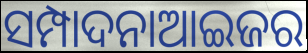
ସମ୍ପାଦନାଆଇଜର